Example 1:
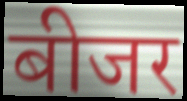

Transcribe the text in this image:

बीजर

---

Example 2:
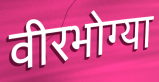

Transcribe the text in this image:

वीरभोग्या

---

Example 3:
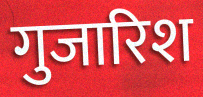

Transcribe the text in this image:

गुजारिश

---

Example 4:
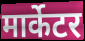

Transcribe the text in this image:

मार्केटर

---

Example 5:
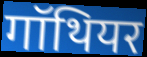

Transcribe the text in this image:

गॉथियर